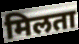
मिलता